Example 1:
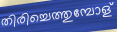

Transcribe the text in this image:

തിരിച്ചെത്തുമ്പോള്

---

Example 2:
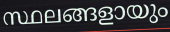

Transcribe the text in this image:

സ്ഥലങ്ങളായും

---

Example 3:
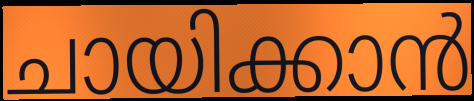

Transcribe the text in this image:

ചായിക്കാൻ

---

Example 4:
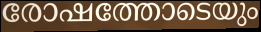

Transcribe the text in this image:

രോഷത്തോടെയും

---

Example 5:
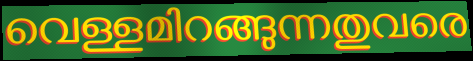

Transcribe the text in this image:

വെള്ളമിറങ്ങുന്നതുവരെ